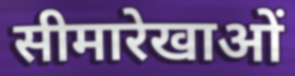
सीमारेखाओं